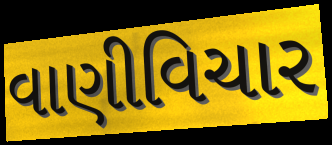
વાણીવિચાર